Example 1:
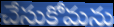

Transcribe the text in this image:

చేసుకోమను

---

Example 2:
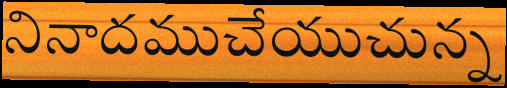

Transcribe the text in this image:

నినాదముచేయుచున్న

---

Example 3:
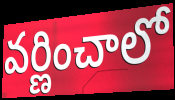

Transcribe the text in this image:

వర్ణించాలో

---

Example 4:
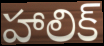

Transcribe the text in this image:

హాలిక్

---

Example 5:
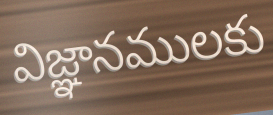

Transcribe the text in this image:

విజ్ఞానములకు